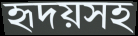
হৃদয়সহ